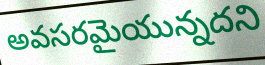
అవసరమైయున్నదని